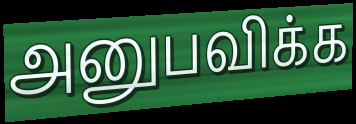
அனுபவிக்க